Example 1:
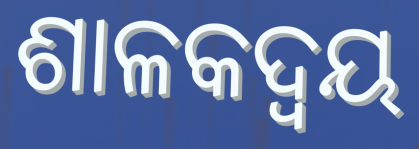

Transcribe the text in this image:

ଶାଳକଦ୍ୱୟ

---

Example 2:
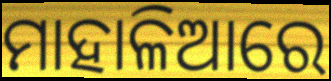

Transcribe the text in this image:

ମାହାଳିଆରେ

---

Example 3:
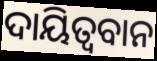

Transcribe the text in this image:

ଦାୟିତ୍ଵବାନ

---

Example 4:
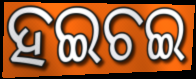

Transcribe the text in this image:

ହଇଚଇ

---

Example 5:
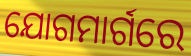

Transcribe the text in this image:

ଯୋଗମାର୍ଗରେ